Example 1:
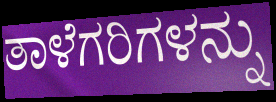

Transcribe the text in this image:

ತಾಳೆಗರಿಗಳನ್ನು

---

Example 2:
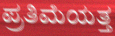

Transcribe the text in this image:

ಪ್ರತಿಮೆಯತ್ತ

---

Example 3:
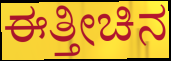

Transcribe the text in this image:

ಈತ್ತೀಚಿನ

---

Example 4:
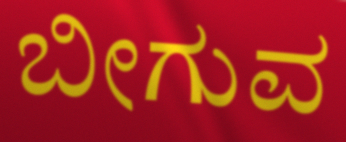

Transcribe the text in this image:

ಬೀಗುವ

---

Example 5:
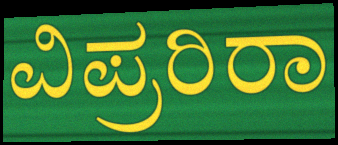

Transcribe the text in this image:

ವಿಪ್ರರಿರಾ